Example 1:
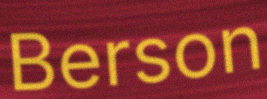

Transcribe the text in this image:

Berson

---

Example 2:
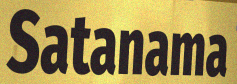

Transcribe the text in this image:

Satanama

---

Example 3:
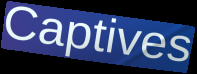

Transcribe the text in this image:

Captives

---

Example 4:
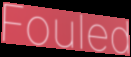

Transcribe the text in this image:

Fouled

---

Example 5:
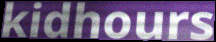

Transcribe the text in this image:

kidhours